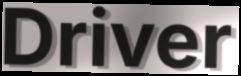
Driver